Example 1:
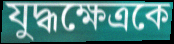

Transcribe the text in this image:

যুদ্ধক্ষেত্রকে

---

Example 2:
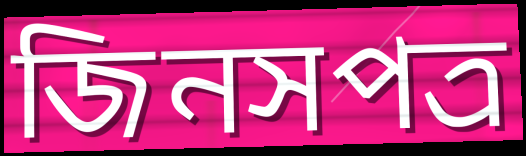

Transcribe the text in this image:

জিনসপত্র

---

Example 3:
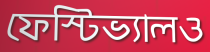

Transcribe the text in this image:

ফেস্টিভ্যালও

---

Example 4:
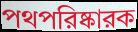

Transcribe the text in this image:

পথপরিষ্কারক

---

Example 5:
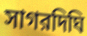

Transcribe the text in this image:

সাগরদিঘি